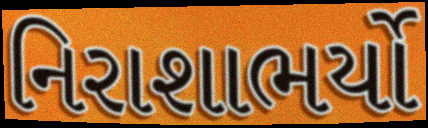
નિરાશાભર્યો